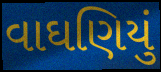
વાઘણિયું